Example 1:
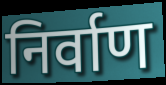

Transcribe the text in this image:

निर्वाण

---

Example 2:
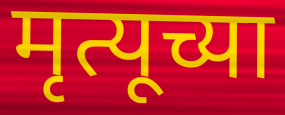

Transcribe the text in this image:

मृत्यूच्या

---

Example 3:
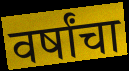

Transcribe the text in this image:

वर्षांचा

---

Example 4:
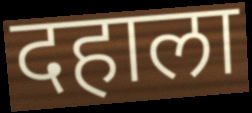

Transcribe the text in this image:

दहाला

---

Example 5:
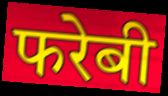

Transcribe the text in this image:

फरेबी